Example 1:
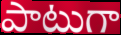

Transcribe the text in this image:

పాటుగా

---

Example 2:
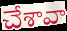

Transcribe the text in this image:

చేశావా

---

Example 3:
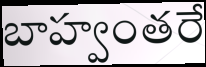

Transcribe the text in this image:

బాహ్వంతరే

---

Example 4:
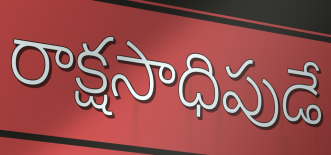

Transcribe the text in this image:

రాక్షసాధిపుడే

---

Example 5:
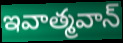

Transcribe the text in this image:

ఇవాత్మవాన్